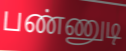
பண்ணுடி